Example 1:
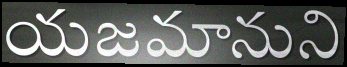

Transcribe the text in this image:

యజమానుని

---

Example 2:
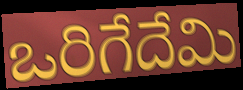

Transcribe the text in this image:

ఒరిగేదేమి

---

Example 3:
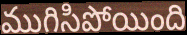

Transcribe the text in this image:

ముగిసిపోయింది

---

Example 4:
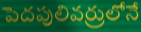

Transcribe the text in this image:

పెదపులివర్రులోనే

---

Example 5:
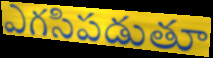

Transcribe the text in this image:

ఎగసిపడుతూ